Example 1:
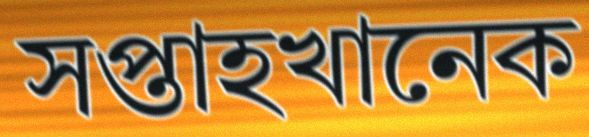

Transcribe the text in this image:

সপ্তাহখানেক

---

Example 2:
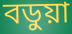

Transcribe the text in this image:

বডুয়া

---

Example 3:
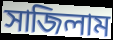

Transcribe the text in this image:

সাজিলাম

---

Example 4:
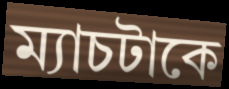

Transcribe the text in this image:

ম্যাচটাকে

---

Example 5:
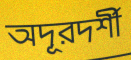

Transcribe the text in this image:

অদূরদর্শী